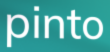
pinto